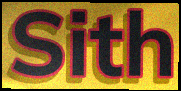
Sith